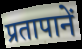
प्रतापानें